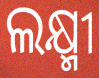
ଲକ୍ଷ୍ମୀ